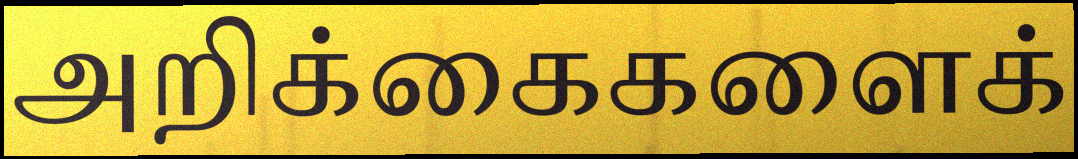
அறிக்கைகளைக்